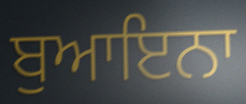
ਬੁਆਇਨਾ